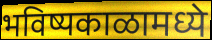
भविष्यकाळामध्ये